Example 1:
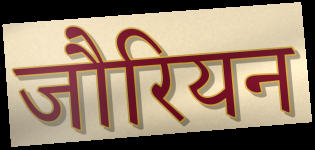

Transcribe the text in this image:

जौरियन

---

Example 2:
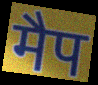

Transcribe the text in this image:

मैप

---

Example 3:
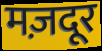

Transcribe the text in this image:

मज़दूर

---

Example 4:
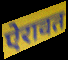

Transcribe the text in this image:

ऐरावत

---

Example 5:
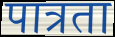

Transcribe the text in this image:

पात्रता